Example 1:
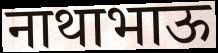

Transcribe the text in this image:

नाथाभाऊ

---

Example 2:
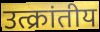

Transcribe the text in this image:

उत्क्रांतीय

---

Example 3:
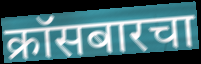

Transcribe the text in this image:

क्रॉसबारचा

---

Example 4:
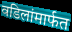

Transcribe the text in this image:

वडिलांमार्फत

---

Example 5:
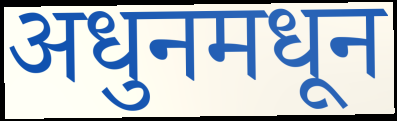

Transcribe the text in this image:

अधुनमधून